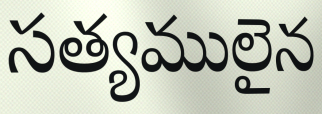
సత్యములైన